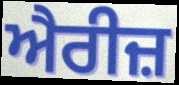
ਐਰੀਜ਼